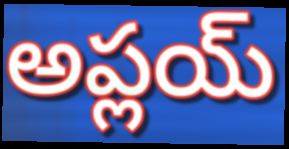
అప్లయ్